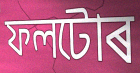
ফলটোৰ